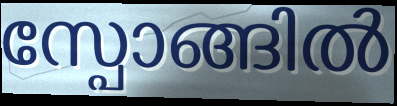
സ്പോങ്ങിൽ